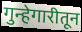
गुन्हेगारीतून